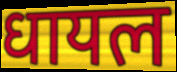
धायल